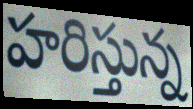
హరిస్తున్న